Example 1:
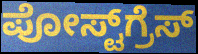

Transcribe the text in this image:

ಪೋಸ್ಟ್‌ಗ್ರೆಸ್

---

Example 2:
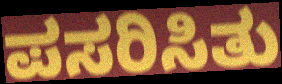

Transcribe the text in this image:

ಪಸರಿಸಿತು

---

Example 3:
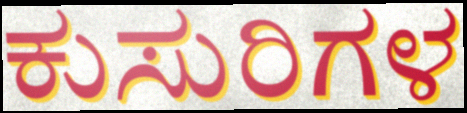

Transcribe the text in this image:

ಕುಸುರಿಗಳ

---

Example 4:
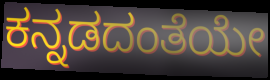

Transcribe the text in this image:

ಕನ್ನಡದಂತೆಯೇ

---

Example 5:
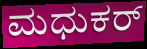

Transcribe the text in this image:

ಮಧುಕರ್